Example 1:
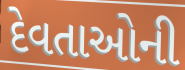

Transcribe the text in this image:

દેવતાઓની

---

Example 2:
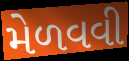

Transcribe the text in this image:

મેળવવી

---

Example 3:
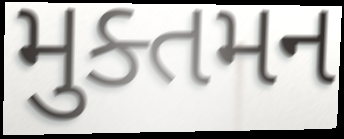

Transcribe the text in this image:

મુક્તમન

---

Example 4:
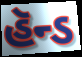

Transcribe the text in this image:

હૅન્ડ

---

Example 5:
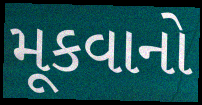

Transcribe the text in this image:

મૂકવાનો